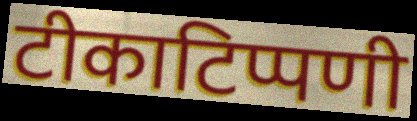
टीकाटिप्पणी